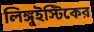
লিঙ্গুইস্টিকের